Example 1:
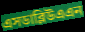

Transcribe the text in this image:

এসডাব্লিউএএন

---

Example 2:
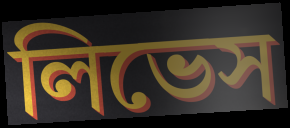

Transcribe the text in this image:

লিভেস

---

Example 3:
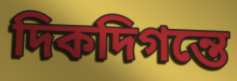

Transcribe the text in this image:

দিকদিগন্তে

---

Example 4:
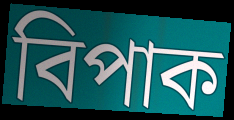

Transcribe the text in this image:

বিপাক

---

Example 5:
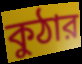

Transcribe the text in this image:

কুঠার